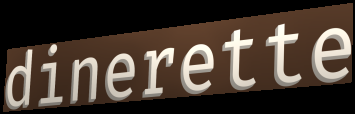
dinerette